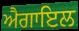
ਐਗਾਇਲ